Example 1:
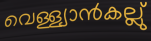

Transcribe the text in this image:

വെള്ള്യാൻകല്ലു്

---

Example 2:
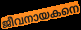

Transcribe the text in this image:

ജീവനായകനെ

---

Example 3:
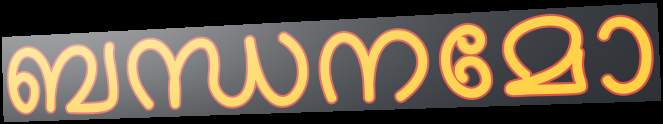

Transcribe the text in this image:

ബന്ധനമോ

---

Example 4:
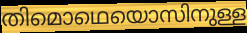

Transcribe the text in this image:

തിമൊഥെയൊസിനുള്ള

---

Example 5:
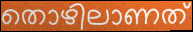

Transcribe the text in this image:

തൊഴിലാണത്